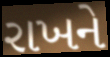
રાખને